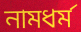
নামধৰ্ম